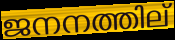
ജനനത്തില്